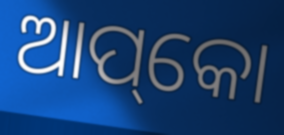
ଆପ୍‌କୋ